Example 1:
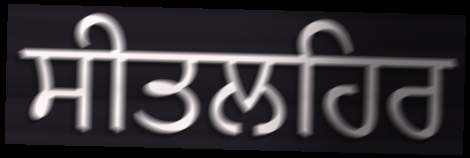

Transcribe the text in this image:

ਸੀਤਲਹਿਰ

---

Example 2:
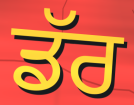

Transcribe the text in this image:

ਡੱਰ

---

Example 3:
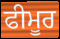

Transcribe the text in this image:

ਫੀਮੂਰ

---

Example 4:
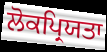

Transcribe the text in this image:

ਲੋਕਪ੍ਰਿਯਤਾ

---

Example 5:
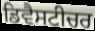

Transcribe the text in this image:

ਡਿਵੈਸਟੀਚਰ